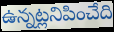
ఉన్నట్లనిపించేది